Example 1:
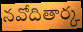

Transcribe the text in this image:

నవోదితార్క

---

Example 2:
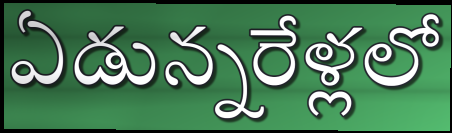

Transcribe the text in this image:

ఏడున్నరేళ్లలో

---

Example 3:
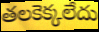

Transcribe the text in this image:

తలకెక్కలేదు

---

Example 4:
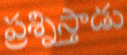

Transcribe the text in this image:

ప్రశ్నిస్తాడు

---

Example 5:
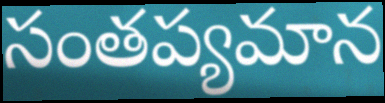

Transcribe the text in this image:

సంతప్యమాన